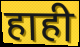
हाही